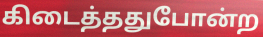
கிடைத்ததுபோன்ற